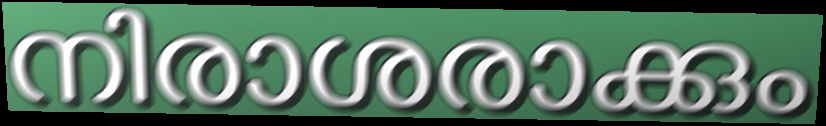
നിരാശരാക്കും